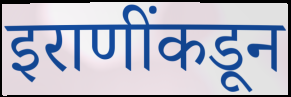
इराणींकडून